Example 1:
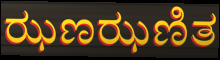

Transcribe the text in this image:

ಝಣಝಣಿತ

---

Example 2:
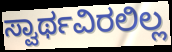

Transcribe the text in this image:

ಸ್ವಾರ್ಥವಿರಲಿಲ್ಲ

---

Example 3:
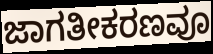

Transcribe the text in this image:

ಜಾಗತೀಕರಣವೂ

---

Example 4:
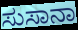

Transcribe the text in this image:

ಸುಸಾನಾ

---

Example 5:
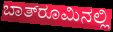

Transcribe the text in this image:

ಬಾತ್‌ರೂಮಿನಲ್ಲಿ